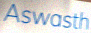
Aswasth